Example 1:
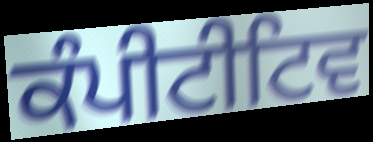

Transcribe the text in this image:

ਕੰਪੀਟੀਟਿਵ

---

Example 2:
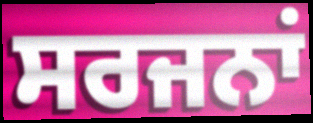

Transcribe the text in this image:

ਸਰਜਨਾਂ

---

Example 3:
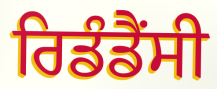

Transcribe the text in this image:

ਰਿਡੰਡੈਂਸੀ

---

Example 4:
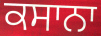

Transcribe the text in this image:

ਕਸਾਨਾ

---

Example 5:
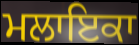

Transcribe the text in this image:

ਮਲਾਇਕਾ